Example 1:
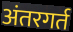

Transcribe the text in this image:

अंतरगर्त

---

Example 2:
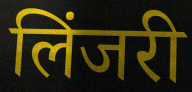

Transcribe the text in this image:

लिंजरी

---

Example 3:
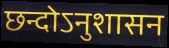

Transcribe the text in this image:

छन्दोऽनुशासन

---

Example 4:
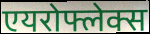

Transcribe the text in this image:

एयरोफ्लेक्स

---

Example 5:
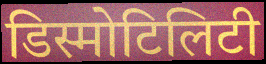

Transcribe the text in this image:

डिस्मोटिलिटी